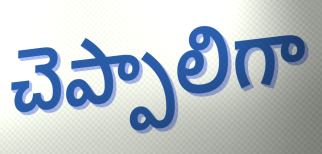
చెప్పాలిగా